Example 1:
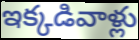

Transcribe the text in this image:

ఇక్కడివాళ్లు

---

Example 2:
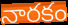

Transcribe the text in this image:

నారకం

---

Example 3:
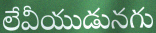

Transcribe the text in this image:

లేవీయుడునగు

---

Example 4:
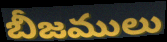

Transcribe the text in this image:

బీజములు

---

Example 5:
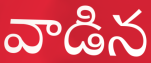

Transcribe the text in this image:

వాడిన